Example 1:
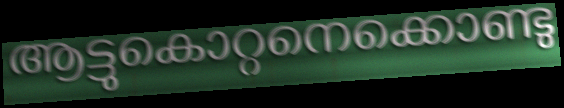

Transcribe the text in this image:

ആട്ടുകൊറ്റനെക്കൊണ്ടു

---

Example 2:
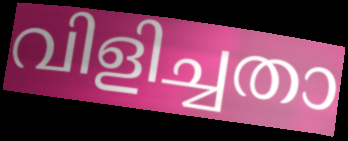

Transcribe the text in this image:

വിളിച്ചതാ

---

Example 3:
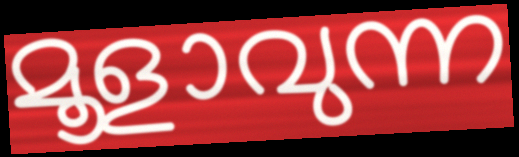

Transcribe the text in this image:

മൂളാവുന്ന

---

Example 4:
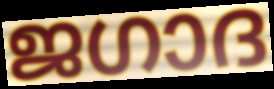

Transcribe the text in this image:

ജഗാദ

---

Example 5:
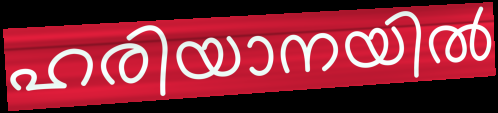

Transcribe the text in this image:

ഹരിയാനയിൽ